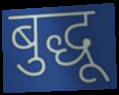
बुद्धू